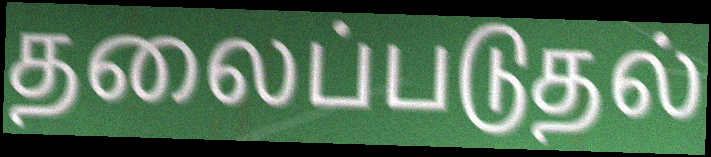
தலைப்படுதல்